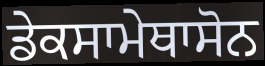
ਡੇਕਸਾਮੇਥਾਸੋਨ